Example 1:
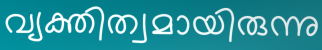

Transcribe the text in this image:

വ്യക്തിത്വമായിരുന്നു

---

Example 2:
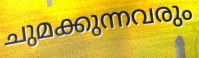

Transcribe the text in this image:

ചുമക്കുന്നവരും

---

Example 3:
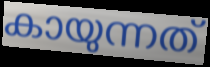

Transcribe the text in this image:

കായുന്നത്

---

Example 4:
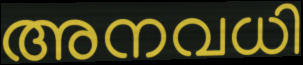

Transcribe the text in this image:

അനവധി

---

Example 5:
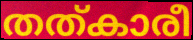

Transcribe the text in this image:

തത്കാരീ